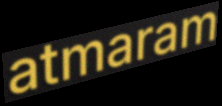
atmaram